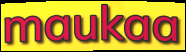
maukaa